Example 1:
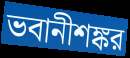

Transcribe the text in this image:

ভবানীশঙ্কর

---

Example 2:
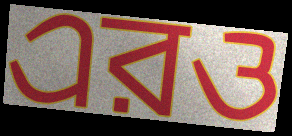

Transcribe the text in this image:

এরও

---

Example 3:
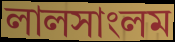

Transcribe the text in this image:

লালসাংলম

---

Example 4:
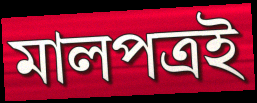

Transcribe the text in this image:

মালপত্রই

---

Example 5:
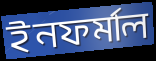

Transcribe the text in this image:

ইনফর্মাল